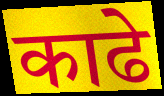
काढे